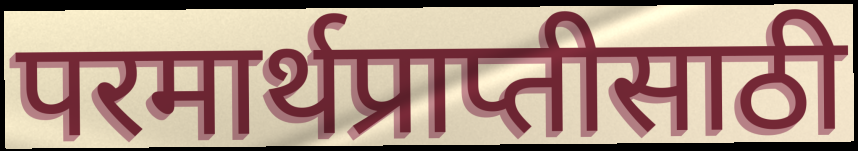
परमार्थप्राप्तीसाठी